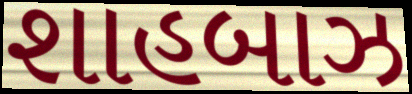
શાહબાઝ